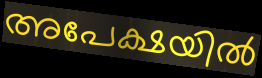
അപേക്ഷയിൽ